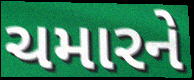
ચમારને